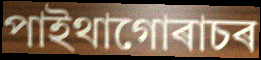
পাইথাগোৰাচৰ